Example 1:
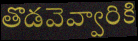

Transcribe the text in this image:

తొడవెవ్వారికి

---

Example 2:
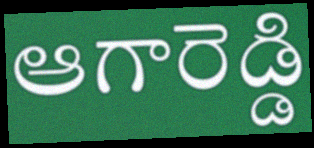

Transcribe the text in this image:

ఆగారెడ్డి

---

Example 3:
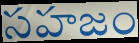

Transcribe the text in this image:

సహజం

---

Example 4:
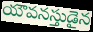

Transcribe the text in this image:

యౌవనస్తుడైన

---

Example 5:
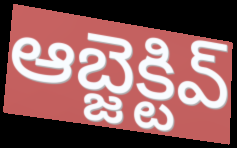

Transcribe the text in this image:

ఆబ్జెక్టివ్